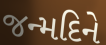
જન્મદિને